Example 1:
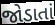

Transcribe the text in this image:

જોડાતાં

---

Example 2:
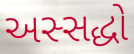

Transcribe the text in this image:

અસ્સદ્ધો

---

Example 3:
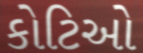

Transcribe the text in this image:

કોટિઓ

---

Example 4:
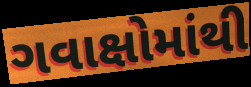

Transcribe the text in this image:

ગવાક્ષોમાંથી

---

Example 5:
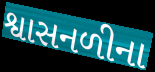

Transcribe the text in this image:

શ્વાસનળીના